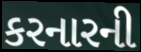
કરનારની